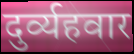
दुर्व्यहवार